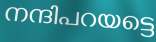
നന്ദിപറയട്ടെ